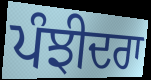
ਪੰਝੀਦਰਾ